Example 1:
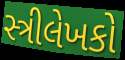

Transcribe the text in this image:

સ્ત્રીલેખકો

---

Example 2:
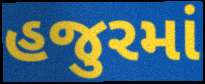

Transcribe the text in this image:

હજુરમાં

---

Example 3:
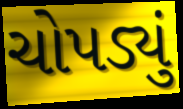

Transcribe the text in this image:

ચોપડ્યું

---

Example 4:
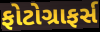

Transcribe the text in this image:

ફોટોગ્રાફર્સ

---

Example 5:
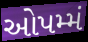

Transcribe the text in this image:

ઓપમ્મં